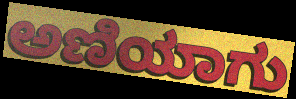
ಅಣಿಯಾಗು